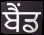
ਬੈਂਡ